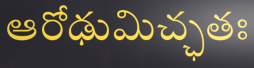
ఆరోఢుమిచ్ఛతః